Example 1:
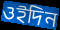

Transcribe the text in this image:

ওইদিন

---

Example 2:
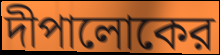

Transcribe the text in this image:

দীপালোকের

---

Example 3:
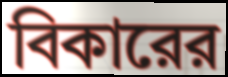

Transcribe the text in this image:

বিকারের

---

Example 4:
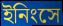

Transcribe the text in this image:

ইনিংসে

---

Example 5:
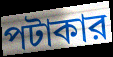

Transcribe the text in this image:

পটাকার